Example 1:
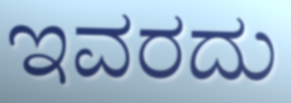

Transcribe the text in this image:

ಇವರದು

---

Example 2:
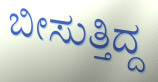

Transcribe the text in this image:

ಬೀಸುತ್ತಿದ್ದ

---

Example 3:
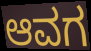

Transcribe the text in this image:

ಆವಗ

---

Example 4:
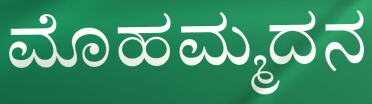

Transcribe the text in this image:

ಮೊಹಮ್ಮದನ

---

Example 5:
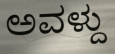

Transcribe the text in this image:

ಅವಳ್ದು